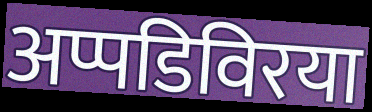
अप्पडिविरया